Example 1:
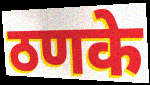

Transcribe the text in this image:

ठणके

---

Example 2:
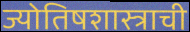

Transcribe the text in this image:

ज्योतिषशास्त्राची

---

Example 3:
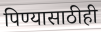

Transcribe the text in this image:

पिण्यासाठीही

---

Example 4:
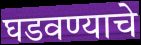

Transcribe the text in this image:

घडवण्याचे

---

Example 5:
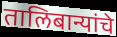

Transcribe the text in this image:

तालिबान्यांचे